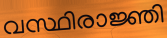
വസ്ഥിരാജ്ഞി